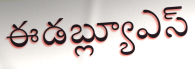
ఈడబ్ల్యూఎస్